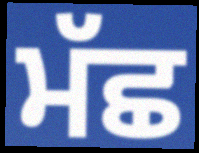
ਮੱਛ